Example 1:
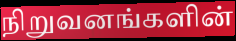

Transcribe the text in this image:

நிறுவனங்களின்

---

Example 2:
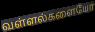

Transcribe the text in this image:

வள்ளல்களையோ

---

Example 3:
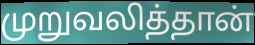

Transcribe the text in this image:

முறுவலித்தான்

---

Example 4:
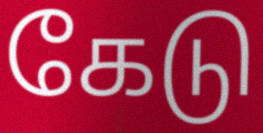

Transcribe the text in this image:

கேடு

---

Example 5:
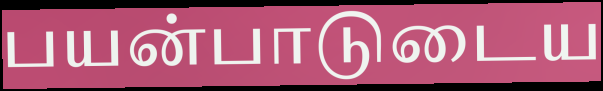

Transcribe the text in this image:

பயன்பாடுடைய